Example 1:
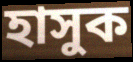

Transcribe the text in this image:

হাসুক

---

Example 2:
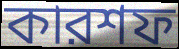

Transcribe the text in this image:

কারশফ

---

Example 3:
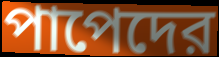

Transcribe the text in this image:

পাপেদের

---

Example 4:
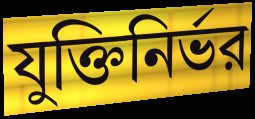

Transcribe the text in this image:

যুক্তিনির্ভর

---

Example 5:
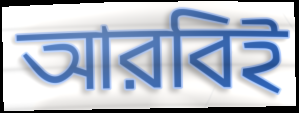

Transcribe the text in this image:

আরবিই